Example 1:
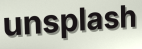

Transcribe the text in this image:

unsplash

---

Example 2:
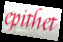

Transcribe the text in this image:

epithet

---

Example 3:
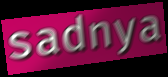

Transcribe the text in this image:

sadnya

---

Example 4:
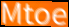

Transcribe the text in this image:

Mtoe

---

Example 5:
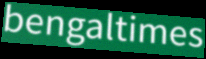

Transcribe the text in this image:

bengaltimes